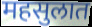
महसुलात